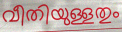
വീതിയുള്ളതും